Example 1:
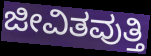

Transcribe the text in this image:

ಜೀವಿತವುತ್ತಿ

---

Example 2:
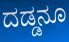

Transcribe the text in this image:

ದಡ್ಡನೂ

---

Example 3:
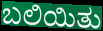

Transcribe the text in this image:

ಬಲಿಯಿತು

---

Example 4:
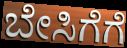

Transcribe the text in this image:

ಬೇಸಿಗೆಗೆ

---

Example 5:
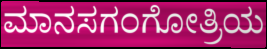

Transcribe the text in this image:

ಮಾನಸಗಂಗೋತ್ರಿಯ